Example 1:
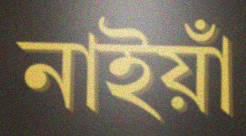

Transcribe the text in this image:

নাইয়াঁ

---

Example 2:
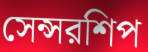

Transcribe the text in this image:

সেন্সরশিপ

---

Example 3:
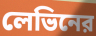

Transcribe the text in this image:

লেভিনের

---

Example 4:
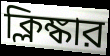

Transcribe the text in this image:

ক্লিঙ্কার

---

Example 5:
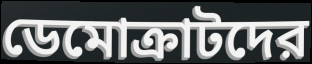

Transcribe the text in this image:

ডেমোক্রাটদের